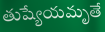
తుష్యేయమృతే